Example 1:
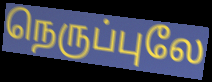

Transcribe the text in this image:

நெருப்புலே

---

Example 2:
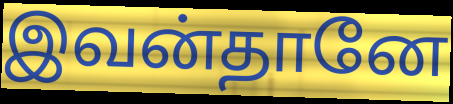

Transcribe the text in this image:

இவன்தானே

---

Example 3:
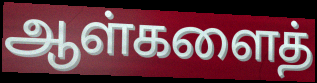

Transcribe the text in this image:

ஆள்களைத்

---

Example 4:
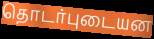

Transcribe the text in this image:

தொடர்புடையன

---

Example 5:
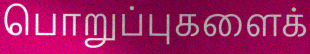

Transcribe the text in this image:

பொறுப்புகளைக்